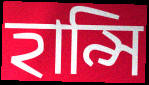
হান্সি